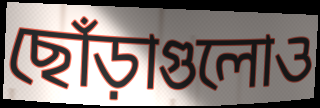
ছোঁড়াগুলোও